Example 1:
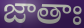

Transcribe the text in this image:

జాతాః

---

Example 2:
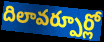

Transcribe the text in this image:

దిలావర్పూర్లో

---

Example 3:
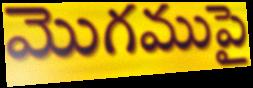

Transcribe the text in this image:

మొగముపై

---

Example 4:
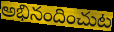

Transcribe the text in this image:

అభినందించుట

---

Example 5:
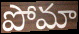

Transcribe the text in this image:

పోమా